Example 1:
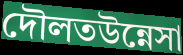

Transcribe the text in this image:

দৌলতউন্নেসা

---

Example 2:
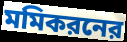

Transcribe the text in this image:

মমিকরনের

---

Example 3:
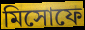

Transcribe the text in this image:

মিসোফে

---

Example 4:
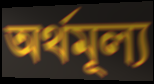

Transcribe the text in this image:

অর্থমূল্য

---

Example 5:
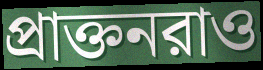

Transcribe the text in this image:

প্রাক্তনরাও